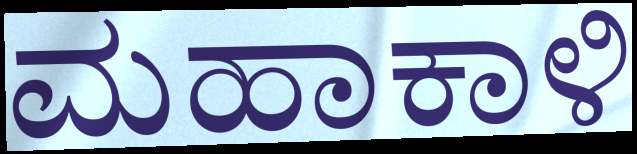
ಮಹಾಕಾಳಿ